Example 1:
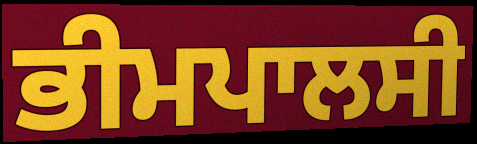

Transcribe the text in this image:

ਭੀਮਪਾਲਸੀ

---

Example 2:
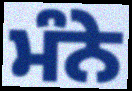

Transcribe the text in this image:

ਮੰਨੇ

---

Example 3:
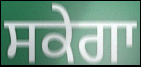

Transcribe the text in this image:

ਸਕੇਗਾ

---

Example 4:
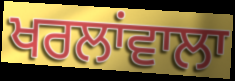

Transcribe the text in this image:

ਖਰਲਾਂਵਾਲਾ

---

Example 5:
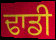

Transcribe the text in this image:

ਢਾਡੀ